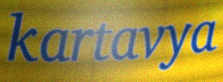
kartavya